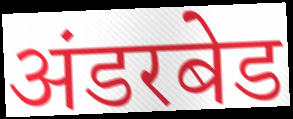
अंडरबेड